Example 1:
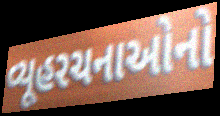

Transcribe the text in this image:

વ્યૂહરચનાઓનો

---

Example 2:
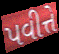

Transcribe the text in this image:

પવીત્તે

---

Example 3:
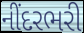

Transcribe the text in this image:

નીંદરભરી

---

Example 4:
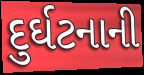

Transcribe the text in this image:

દુર્ઘટનાની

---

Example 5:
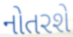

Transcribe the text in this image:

નોતરશે